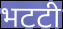
भटटी